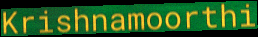
Krishnamoorthi